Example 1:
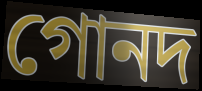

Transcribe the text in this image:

গোনদ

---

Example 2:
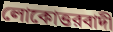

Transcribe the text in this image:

লোকোত্তরবাদী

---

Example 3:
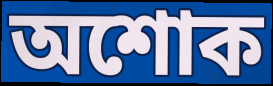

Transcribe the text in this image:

অশোক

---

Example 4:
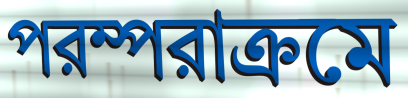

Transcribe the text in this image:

পরম্পরাক্রমে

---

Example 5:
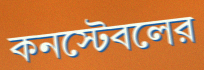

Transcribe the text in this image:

কনস্টেবলের